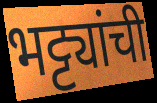
भट्ट्यांची